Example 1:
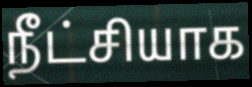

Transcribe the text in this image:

நீட்சியாக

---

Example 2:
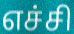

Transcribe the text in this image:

எச்சி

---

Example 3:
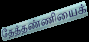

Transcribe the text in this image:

தேத்தண்ணியைக்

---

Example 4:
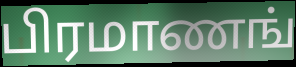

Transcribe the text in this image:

பிரமாணங்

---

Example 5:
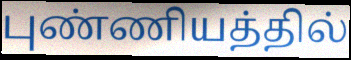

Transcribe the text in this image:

புண்ணியத்தில்